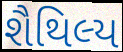
શૈથિલ્ય